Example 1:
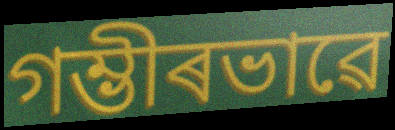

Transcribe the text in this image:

গম্ভীৰভাৱে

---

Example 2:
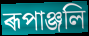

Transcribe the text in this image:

ৰূপাঞ্জলি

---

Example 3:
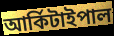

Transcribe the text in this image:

আৰ্কিটাইপাল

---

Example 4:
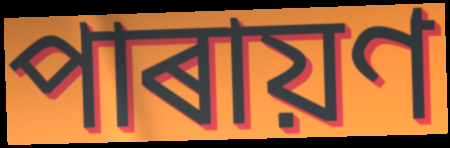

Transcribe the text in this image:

পাৰায়ণ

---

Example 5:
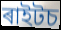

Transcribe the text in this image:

ৰাইটচ